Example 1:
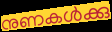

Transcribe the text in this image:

നുണകൾക്കു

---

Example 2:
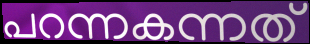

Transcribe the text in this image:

പറന്നകന്നത്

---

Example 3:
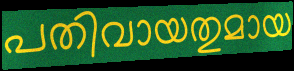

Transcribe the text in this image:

പതിവായതുമായ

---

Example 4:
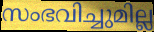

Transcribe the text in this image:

സംഭവിച്ചുമില്ല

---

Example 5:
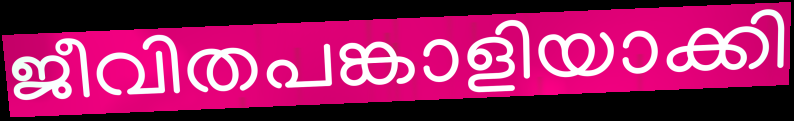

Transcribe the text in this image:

ജീവിതപങ്കാളിയാക്കി